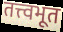
तत्त्वभूत